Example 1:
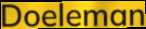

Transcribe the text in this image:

Doeleman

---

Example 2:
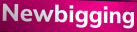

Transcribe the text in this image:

Newbigging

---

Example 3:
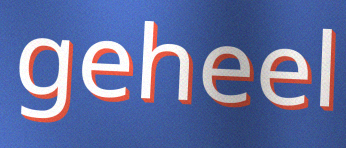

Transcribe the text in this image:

geheel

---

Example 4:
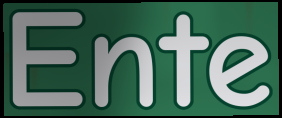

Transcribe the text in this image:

Ente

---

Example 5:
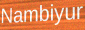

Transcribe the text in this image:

Nambiyur